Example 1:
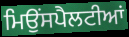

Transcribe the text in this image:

ਮਿਉਂਸਪੈਲਟੀਆਂ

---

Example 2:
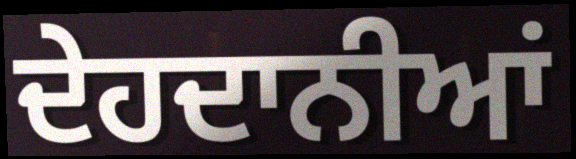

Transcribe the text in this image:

ਦੇਹਦਾਨੀਆਂ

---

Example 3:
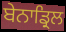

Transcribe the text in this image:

ਬੇਨਾਡ੍ਰਿਲ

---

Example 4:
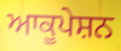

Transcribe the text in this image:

ਆਕੂਪੇਸ਼ਨ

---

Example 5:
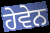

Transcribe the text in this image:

ਹੇਵੇਨ